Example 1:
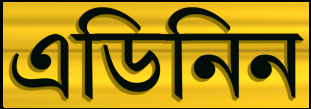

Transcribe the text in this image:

এডিনিন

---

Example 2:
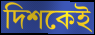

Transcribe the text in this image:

দিশকেই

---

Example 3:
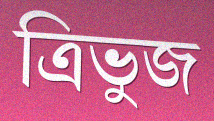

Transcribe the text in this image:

ত্ৰিভুজ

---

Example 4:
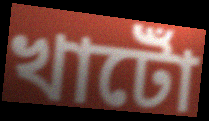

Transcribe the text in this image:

খাটোঁ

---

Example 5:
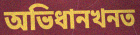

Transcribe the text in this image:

অভিধানখনত